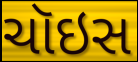
ચૉઇસ